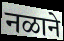
नळाने